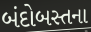
બંદોબસ્તના